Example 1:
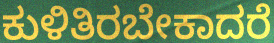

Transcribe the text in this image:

ಕುಳಿತಿರಬೇಕಾದರೆ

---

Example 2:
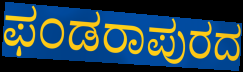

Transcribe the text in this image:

ಫಂಡರಾಪುರದ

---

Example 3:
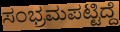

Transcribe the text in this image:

ಸಂಭ್ರಮಪಟ್ಟಿದ್ದೆ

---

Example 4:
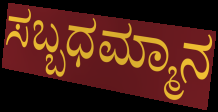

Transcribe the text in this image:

ಸಬ್ಬಧಮ್ಮಾನ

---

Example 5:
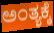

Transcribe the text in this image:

ಅಂತ್ಯಕ್ಕೆ